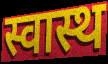
स्वास्थ